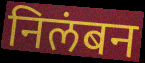
निलंबन